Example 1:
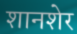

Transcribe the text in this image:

शानशेर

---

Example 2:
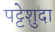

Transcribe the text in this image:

पट्टेशुदा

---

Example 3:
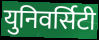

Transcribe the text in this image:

युनिवर्सिटी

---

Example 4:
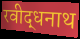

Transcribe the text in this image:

रवीद्धनाथ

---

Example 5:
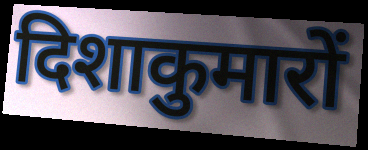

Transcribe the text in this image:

दिशाकुमारों